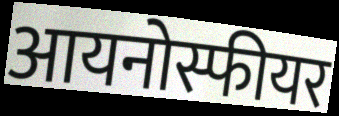
आयनोस्फीयर